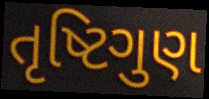
તૃષ્ટિગુણ